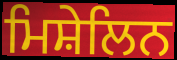
ਮਿਸ਼ੇਲਿਨ